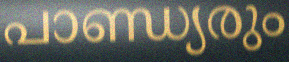
പാണ്ഡ്യരും